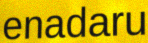
enadaru